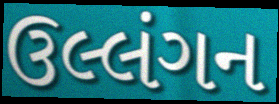
ઉલ્લંગન